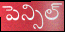
పెన్సిల్